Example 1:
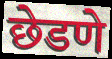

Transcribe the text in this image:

छेडणे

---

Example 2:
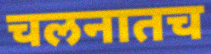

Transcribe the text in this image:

चलनातच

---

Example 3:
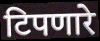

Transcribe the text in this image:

टिपणारे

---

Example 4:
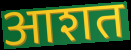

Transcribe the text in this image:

आशत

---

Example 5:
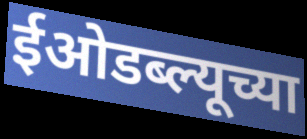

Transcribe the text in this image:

ईओडब्ल्यूच्या